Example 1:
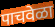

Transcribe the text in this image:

पाचवेळा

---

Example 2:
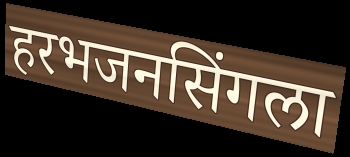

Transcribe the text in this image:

हरभजनसिंगला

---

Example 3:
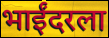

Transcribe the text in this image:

भाईंदरला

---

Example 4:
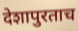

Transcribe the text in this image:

देशापुरताच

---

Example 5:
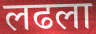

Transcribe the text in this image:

लढला